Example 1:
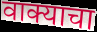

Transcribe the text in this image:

वाक्याचा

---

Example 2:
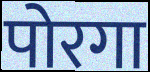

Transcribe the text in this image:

पोरगा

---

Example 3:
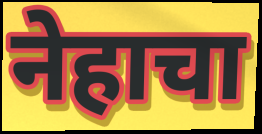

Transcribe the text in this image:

नेहाचा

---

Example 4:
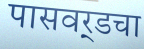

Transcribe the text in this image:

पासवर्डचा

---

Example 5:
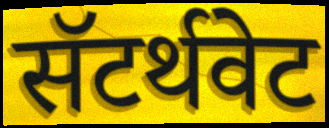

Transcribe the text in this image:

सॅटर्थवेट